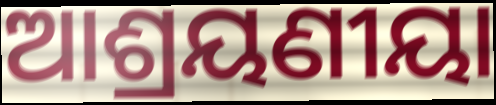
ଆଶ୍ରୟଣୀୟା